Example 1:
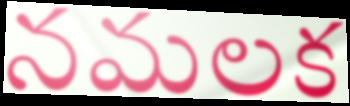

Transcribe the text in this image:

నమలక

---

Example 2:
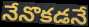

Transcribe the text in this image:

నేనొకడనే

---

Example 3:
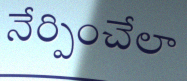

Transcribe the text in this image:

నేర్పించేలా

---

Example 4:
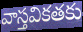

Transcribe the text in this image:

వాస్తవికతకు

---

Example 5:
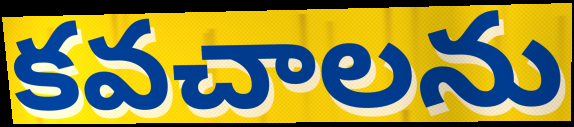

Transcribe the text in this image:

కవచాలను